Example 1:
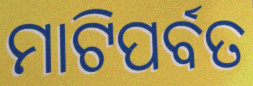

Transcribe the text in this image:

ମାଟିପର୍ବତ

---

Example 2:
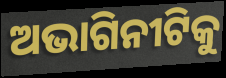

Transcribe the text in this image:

ଅଭାଗିନୀଟିକୁ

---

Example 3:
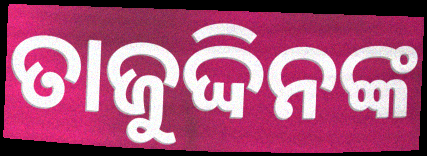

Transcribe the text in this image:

ତାଜୁଦ୍ଦିନଙ୍କ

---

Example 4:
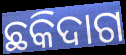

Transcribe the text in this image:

ଛକିଦାଗ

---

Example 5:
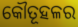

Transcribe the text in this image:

କୌତୂହଳର